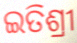
ଇତିଶ୍ରୀ